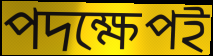
পদক্ষেপই